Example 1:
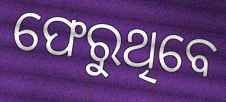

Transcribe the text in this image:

ଫେରୁଥିବେ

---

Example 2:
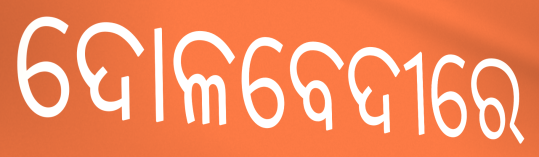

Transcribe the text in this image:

ଦୋଳବେଦୀରେ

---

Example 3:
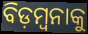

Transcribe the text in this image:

ବିଡ଼ମ୍ୱନାକୁ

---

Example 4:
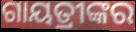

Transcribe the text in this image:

ଗାୟତ୍ରୀଙ୍କର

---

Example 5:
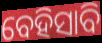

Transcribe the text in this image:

ବେହିସାବି